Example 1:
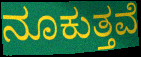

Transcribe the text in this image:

ನೂಕುತ್ತವೆ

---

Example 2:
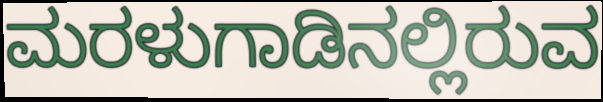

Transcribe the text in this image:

ಮರಳುಗಾಡಿನಲ್ಲಿರುವ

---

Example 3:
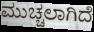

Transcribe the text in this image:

ಮುಚ್ಚಲಾಗಿದೆ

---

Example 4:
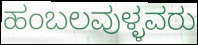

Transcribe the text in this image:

ಹಂಬಲವುಳ್ಳವರು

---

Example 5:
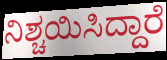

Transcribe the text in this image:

ನಿಶ್ಚಯಿಸಿದ್ದಾರೆ